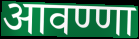
आवण्णा